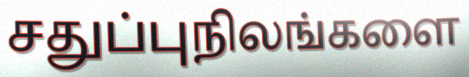
சதுப்புநிலங்களை